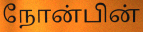
நோன்பின்